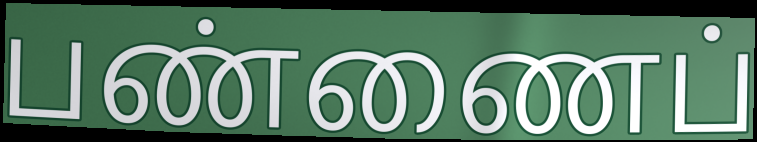
பண்ணைப்